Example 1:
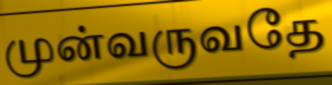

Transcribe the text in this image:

முன்வருவதே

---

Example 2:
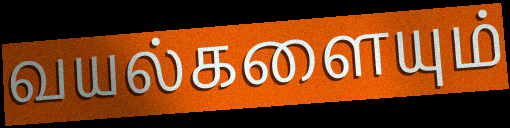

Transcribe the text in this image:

வயல்களையும்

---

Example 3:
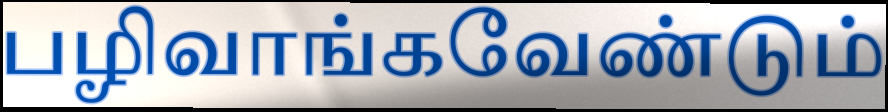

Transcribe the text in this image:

பழிவாங்கவேண்டும்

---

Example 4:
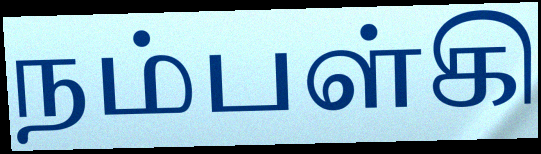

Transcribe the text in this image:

நம்பள்கி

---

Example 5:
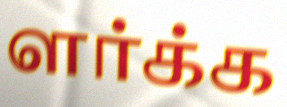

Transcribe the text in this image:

ளர்க்க